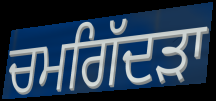
ਚਮਗਿੱਦੜਾ